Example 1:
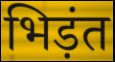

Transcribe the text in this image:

भिड़ंत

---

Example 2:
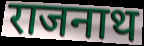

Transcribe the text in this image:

राजनाथ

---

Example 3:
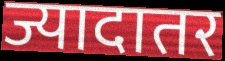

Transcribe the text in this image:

ज्यादातर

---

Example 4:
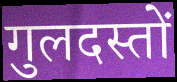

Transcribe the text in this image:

गुलदस्तों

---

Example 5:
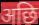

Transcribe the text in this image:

अछि